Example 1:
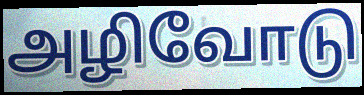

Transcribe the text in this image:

அழிவோடு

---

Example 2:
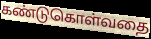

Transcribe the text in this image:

கண்டுகொள்வதை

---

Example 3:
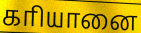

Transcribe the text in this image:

கரியானை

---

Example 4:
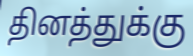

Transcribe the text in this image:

தினத்துக்கு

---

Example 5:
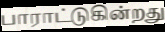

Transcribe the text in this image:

பாராட்டுகின்றது